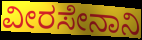
ವೀರಸೇನಾನಿ